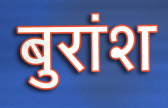
बुरांश